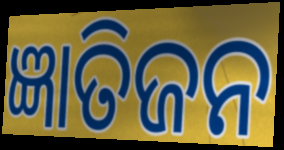
ଜ୍ଞାତିଜନ